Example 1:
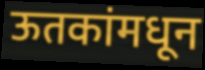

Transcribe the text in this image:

ऊतकांमधून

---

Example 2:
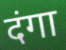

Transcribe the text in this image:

दंगा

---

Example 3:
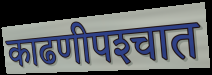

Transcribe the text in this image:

काढणीपश्‍चात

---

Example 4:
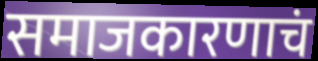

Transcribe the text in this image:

समाजकारणाचं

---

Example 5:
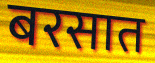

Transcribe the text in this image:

बरसात